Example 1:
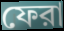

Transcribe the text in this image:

ফেরা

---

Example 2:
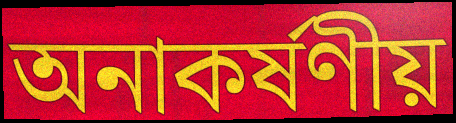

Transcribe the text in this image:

অনাকর্ষণীয়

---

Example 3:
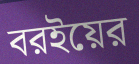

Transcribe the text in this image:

বরইয়ের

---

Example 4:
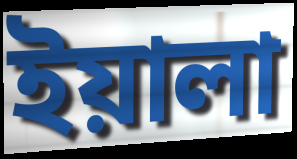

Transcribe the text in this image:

ইয়ালা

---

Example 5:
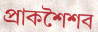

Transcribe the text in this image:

প্রাকশৈশব